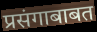
प्रसंगाबाबत